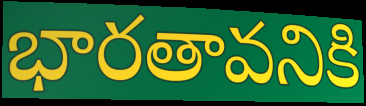
భారతావనికి